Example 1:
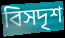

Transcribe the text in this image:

বিসদৃশ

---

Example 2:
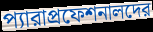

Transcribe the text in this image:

প্যারাপ্রফেশনালদের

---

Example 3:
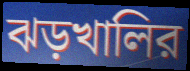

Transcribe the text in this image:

ঝড়খালির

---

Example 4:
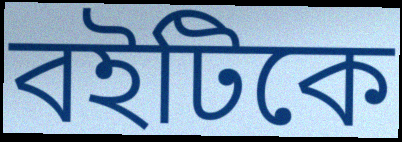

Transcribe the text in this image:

বইটিকে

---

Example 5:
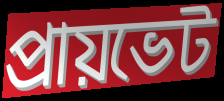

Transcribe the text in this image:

প্রায়ভেট